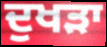
ਦੁਖੜਾ